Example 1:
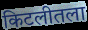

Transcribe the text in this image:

किटलीतला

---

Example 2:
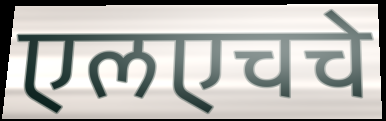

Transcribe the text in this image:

एलएचचे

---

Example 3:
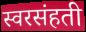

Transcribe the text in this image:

स्वरसंहती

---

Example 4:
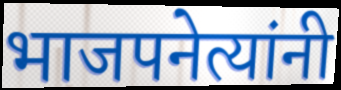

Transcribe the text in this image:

भाजपनेत्यांनी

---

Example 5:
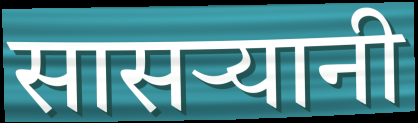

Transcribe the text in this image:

सासऱ्यानी